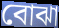
বোঝা